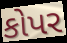
કોપર